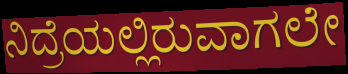
ನಿದ್ರೆಯಲ್ಲಿರುವಾಗಲೇ